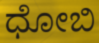
ಧೋಬಿ